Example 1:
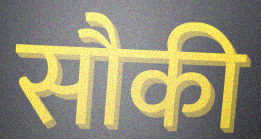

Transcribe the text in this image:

सौकी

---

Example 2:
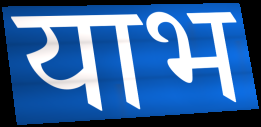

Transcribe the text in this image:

याभ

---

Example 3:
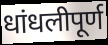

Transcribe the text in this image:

धांधलीपूर्ण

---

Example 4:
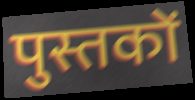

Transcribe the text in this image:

पुस्‍तकों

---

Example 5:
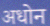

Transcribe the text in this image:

अधोन